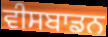
ਵੀਸਬਾਡਨ